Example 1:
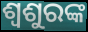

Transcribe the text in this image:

ଶ୍ୱଶୁରଙ୍କ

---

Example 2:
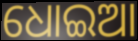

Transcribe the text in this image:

ଧୋଇଆ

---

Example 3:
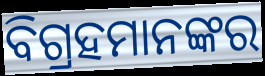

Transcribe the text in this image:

ବିଗ୍ରହମାନଙ୍କର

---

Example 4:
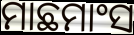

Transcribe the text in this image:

ମାଛମାଂସ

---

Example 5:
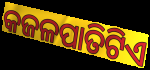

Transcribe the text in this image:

କଜଳପାତିଟିଏ